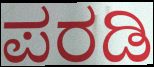
ಪರಡಿ